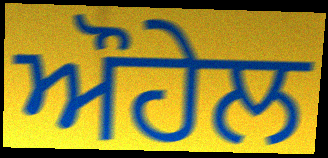
ਔਹੇਲ